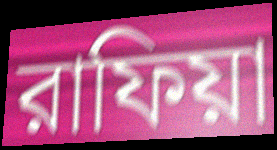
রাফিয়া